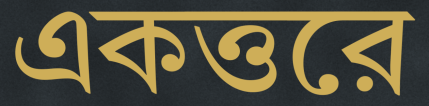
একত্তরে